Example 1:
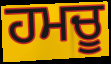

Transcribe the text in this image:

ਹਮਚੂ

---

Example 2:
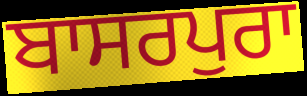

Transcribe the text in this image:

ਬਾਸਰਪੁਰਾ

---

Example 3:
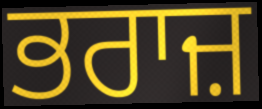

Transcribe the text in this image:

ਭਰਾਜ਼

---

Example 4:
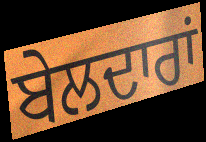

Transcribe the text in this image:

ਬੇਲਦਾਰਾਂ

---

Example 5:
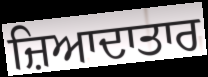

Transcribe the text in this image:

ਜ਼ਿਆਦਾਤਾਰ